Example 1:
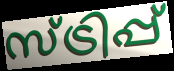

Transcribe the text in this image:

സ്ട്രിപ്പ്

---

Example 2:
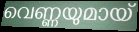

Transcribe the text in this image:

വെണ്ണയുമായ്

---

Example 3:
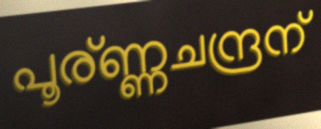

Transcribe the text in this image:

പൂര്ണ്ണചന്ദ്രന്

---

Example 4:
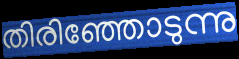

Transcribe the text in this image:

തിരിഞ്ഞോടുന്നു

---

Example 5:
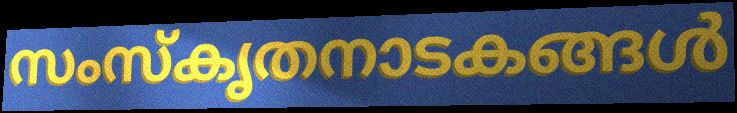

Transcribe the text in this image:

സംസ്കൃതനാടകങ്ങൾ